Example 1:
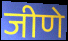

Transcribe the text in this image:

जीणे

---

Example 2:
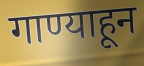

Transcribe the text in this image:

गाण्याहून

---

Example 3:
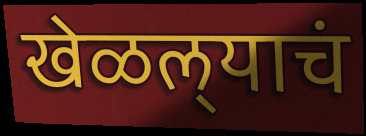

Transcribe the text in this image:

खेळल्याचं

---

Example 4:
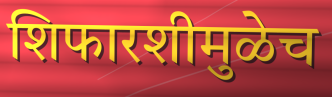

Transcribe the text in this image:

शिफारशीमुळेच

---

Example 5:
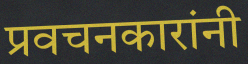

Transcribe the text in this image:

प्रवचनकारांनी